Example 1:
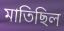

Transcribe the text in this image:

মাতিছিল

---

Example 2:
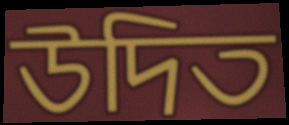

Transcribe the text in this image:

উদিত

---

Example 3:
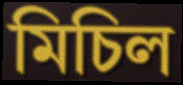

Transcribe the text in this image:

মিচিল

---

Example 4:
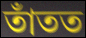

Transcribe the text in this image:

তাঁতত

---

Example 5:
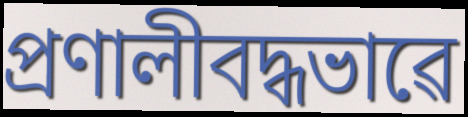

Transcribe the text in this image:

প্ৰণালীবদ্ধভাৱে